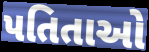
પતિતાઓ